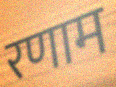
रणाम